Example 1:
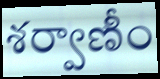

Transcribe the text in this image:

శర్వాణీం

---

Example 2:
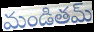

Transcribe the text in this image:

మండితమ్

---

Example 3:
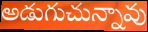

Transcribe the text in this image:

అడుగుచున్నావు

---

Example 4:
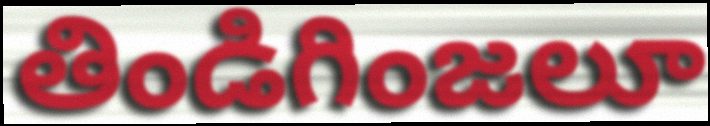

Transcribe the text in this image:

తిండిగింజలూ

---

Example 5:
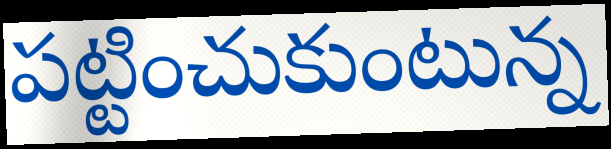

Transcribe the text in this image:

పట్టించుకుంటున్న